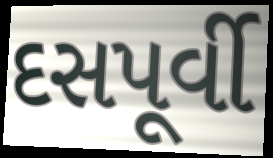
દસપૂર્વી